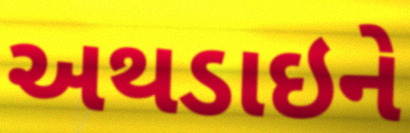
અથડાઇને